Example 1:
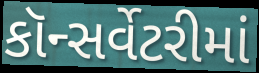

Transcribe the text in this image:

કૉન્સર્વેટરીમાં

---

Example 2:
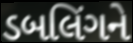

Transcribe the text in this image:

ડબલિંગને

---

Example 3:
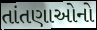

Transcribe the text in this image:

તાંતણાઓનો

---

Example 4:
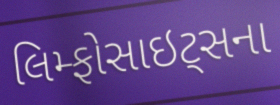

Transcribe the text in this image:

લિમ્ફોસાઇટ્સના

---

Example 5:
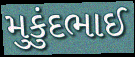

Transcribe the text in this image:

મુકુંદભાઈ